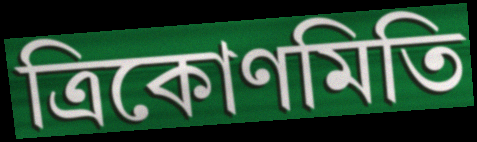
ত্ৰিকোণমিতি